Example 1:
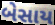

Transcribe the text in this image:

બેસાય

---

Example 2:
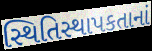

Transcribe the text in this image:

સ્થિતિસ્થાપકતાનાં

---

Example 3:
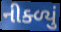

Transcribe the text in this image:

નીક્ળ્યું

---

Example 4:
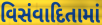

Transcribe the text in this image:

વિસંવાદિતામાં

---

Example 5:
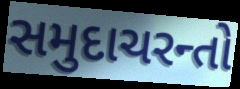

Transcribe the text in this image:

સમુદાચરન્તો